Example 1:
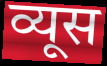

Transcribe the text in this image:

व्यूस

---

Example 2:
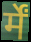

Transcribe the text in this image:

र्में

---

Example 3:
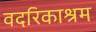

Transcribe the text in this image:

वदरिकाश्रम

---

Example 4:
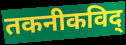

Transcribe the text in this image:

तकनीकविद्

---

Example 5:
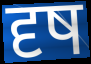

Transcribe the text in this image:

दृष